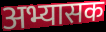
अभ्यासक